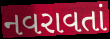
નવરાવતાં